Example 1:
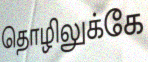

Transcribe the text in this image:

தொழிலுக்கே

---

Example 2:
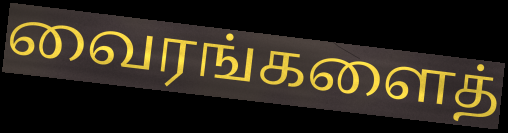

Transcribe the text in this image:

வைரங்களைத்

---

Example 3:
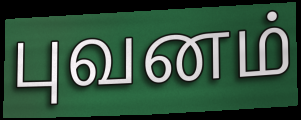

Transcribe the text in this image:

புவனம்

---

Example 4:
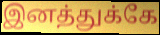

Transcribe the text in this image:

இனத்துக்கே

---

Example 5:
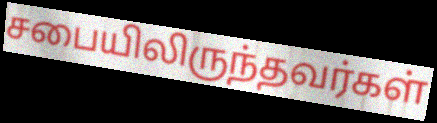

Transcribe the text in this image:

சபையிலிருந்தவர்கள்